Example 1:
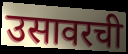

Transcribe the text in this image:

उसावरची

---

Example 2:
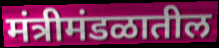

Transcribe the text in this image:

मंत्रीमंडळातील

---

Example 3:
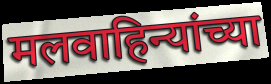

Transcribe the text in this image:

मलवाहिन्यांच्या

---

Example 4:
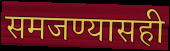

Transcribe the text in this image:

समजण्यासही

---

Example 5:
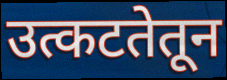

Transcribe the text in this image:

उत्कटतेतून